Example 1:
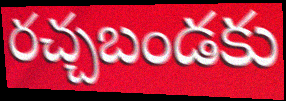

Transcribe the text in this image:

రచ్చబండకు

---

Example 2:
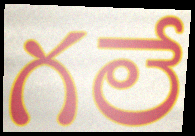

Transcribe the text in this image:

గలే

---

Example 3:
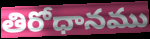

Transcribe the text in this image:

తిరోధానము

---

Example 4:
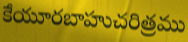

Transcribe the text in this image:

కేయూరబాహుచరిత్రము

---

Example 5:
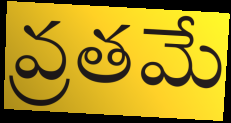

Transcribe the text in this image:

వ్రతమే